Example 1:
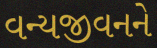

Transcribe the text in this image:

વન્યજીવનને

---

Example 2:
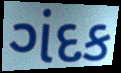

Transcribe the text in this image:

ગંદક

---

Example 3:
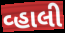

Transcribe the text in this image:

વ્હાલી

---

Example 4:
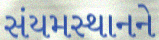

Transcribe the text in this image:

સંયમસ્થાનને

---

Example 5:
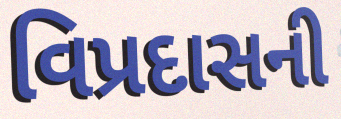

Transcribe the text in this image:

વિપ્રદાસની